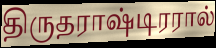
திருதராஷ்டிரரால்